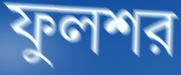
ফুলশর